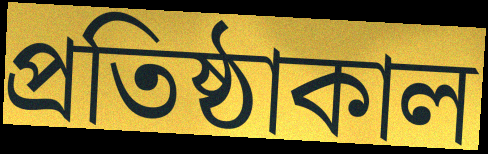
প্রতিষ্ঠাকাল